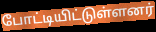
போட்டியிட்டுள்ளனர்